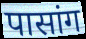
पासांग